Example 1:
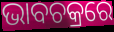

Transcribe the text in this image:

ଭାବଚକ୍ରରେ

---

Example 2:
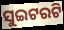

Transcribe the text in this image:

ସୁଇଟରଟି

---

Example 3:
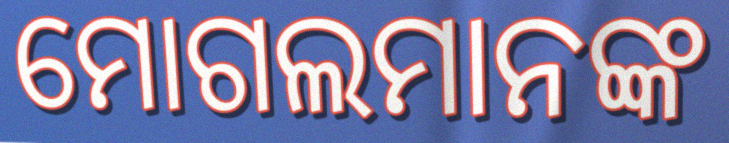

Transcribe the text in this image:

ମୋଗଲମାନଙ୍କ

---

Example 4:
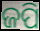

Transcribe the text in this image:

ଜପି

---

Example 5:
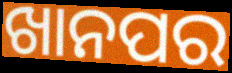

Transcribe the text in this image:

ଖାନପର